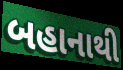
બહાનાથી